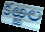
కఱ్ఱల